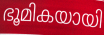
ഭൂമികയായി